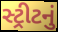
સ્ટ્રીટનું